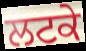
ਲਟਕੇ